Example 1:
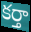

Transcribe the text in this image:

కర్తా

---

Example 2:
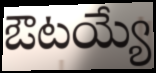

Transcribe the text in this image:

ఔటయ్యే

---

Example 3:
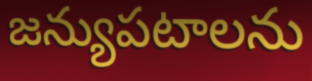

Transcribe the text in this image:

జన్యుపటాలను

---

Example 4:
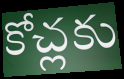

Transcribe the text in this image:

కోచ్లకు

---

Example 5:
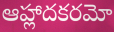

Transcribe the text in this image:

ఆహ్లాదకరమో